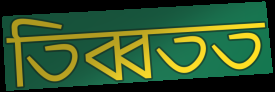
তিব্বতত